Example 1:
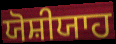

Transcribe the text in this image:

ਯੋਸ਼ੀਯਾਹ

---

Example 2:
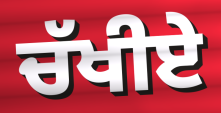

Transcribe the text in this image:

ਚੱਖੀਏ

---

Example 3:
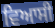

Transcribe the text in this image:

ਵਿਆਸੀ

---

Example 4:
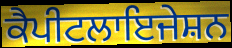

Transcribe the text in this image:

ਕੈਪੀਟਲਾਇਜੇਸ਼ਨ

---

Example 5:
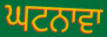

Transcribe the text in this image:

ਘਟਨਾਵਾ